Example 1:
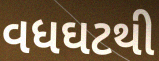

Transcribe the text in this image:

વધઘટથી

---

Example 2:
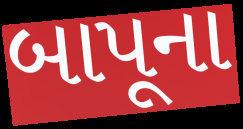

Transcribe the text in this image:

બાપૂના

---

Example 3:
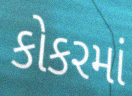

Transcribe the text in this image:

કોકરમાં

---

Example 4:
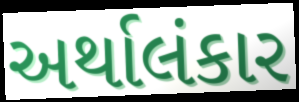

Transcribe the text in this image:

અર્થાલંકાર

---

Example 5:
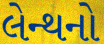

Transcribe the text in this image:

લેન્થનો